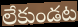
లేకుండట